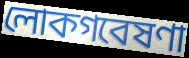
লোকগবেষণা